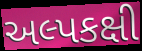
અલ્પકક્ષી